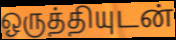
ஒருத்தியுடன்